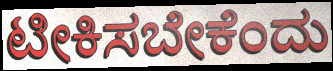
ಟೀಕಿಸಬೇಕೆಂದು